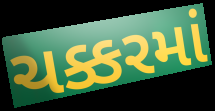
ચક્કરમાં